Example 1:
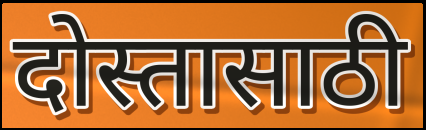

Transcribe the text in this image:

दोस्तासाठी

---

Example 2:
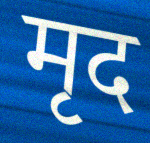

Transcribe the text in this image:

मृद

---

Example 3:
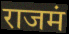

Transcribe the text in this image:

राजमं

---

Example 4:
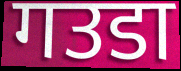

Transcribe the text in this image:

गउडा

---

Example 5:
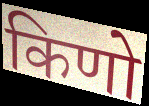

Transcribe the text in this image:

किणो